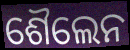
ଶୈଲେନ